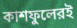
কাশফুলেরই